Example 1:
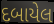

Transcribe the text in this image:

દબાયેલ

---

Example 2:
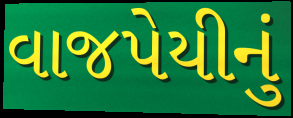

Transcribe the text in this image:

વાજપેયીનું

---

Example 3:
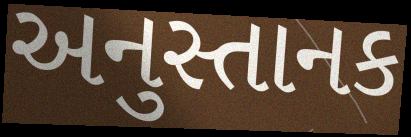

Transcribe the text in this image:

અનુસ્તાનક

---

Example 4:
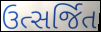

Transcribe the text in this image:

ઉત્સર્જિત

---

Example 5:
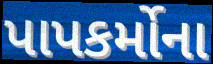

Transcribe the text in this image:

પાપકર્મોના